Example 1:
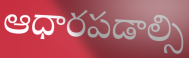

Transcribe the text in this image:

ఆధారపడాల్సి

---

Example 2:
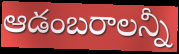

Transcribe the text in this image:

ఆడంబరాలన్నీ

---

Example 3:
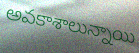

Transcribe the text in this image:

అవకాశాలున్నాయి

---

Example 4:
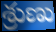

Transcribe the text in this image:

శ్రుణు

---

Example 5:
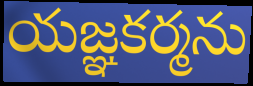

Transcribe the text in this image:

యజ్ఞకర్మను